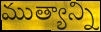
ముత్యాన్ని